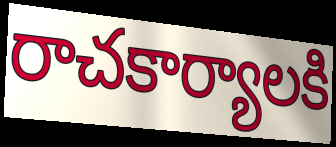
రాచకార్యాలకి